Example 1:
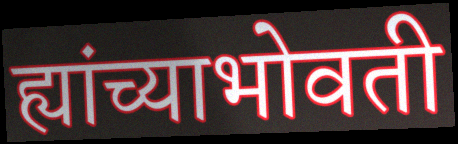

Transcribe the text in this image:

ह्यांच्याभोवती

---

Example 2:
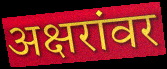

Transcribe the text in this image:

अक्षरांवर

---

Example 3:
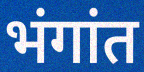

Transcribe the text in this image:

भंगांत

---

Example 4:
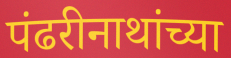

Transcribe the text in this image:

पंढरीनाथांच्या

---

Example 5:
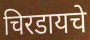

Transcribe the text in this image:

चिरडायचे